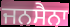
ਜਨਸੈਨਾ